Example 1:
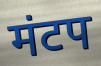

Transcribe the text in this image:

मंटप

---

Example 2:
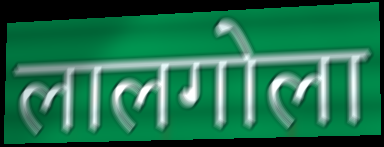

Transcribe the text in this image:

लालगोला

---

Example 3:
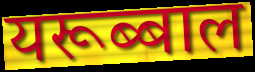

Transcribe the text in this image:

यरूब्बाल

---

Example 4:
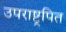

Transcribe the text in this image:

उपराष्ट्रपित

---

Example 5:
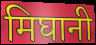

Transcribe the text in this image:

मिघानी